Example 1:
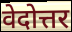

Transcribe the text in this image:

वेदोत्तर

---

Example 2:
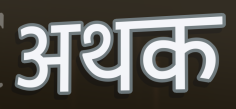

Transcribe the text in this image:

अथक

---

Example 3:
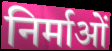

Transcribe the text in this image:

निर्माओं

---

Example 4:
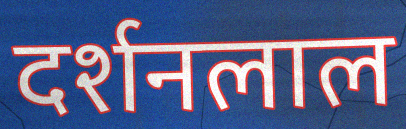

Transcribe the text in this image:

दर्शनलाल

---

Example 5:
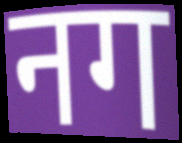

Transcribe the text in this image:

नग